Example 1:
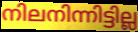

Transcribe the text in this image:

നിലനിന്നിട്ടില്ല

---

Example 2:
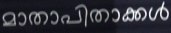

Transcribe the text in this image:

മാതാപിതാക്കൾ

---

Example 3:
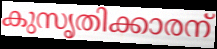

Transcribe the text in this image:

കുസൃതിക്കാരന്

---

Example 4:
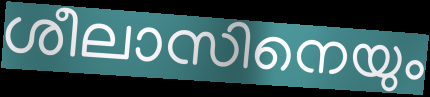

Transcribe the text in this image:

ശീലാസിനെയും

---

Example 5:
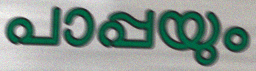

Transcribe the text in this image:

പാപ്പയും